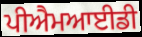
ਪੀਐਮਆਈਡੀ